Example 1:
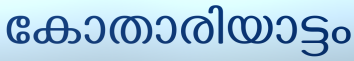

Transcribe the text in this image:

കോതാരിയാട്ടം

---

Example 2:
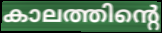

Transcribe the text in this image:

കാലത്തിന്റെ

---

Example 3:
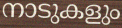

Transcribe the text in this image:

നാടുകളും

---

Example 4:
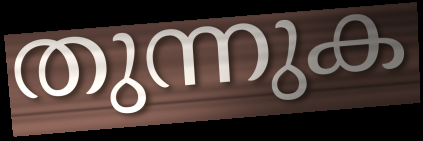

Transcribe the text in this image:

തുന്നുക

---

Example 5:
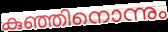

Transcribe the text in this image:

കുഞ്ഞിനൊന്നും